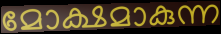
മോക്ഷമാകുന്ന